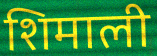
शिमाली